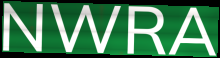
NWRA